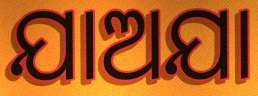
ଯାଅଯା